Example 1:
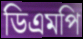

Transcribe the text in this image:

ডিএমপি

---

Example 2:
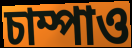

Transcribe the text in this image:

চাম্পাও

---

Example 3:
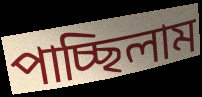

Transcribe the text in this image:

পাচ্ছিলাম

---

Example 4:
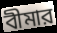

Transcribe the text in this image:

বীমার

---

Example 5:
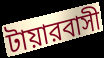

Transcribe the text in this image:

টায়ারবাসী